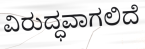
ವಿರುದ್ಧವಾಗಲಿದೆ